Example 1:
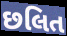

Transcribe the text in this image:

છલિત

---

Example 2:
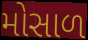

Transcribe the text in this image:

મોસાળ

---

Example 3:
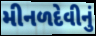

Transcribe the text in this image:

મીનળદેવીનું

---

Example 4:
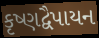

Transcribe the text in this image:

કૃષ્ણદ્વૈપાયન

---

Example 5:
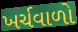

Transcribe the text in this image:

ખર્ચવાળો